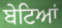
ਬੇਟਿਆਂ